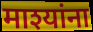
माश्यांना